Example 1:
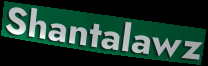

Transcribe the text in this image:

Shantalawz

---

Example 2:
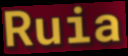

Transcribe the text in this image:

Ruia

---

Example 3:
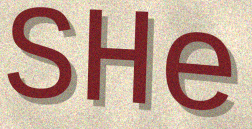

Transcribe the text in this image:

SHe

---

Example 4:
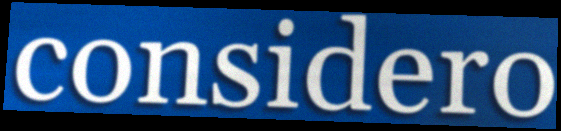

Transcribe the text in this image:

considero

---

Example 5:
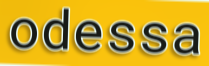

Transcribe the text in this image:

odessa